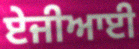
ਏਜੀਆਈ